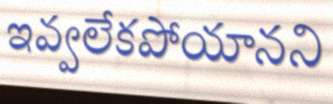
ఇవ్వలేకపోయానని